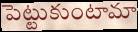
పెట్టుకుంటామా